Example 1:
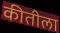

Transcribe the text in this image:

कीतीला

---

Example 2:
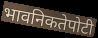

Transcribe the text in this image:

भावनिकतेपोटी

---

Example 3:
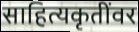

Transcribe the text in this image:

साहित्यकृतींवर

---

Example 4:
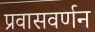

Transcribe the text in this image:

प्रवासवर्णन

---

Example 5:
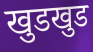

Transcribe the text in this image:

खुडखुड